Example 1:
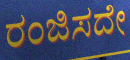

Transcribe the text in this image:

ರಂಜಿಸದೇ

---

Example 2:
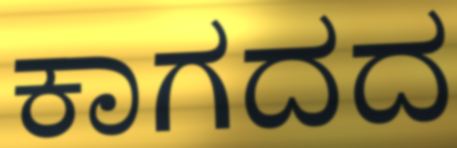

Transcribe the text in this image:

ಕಾಗದದ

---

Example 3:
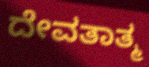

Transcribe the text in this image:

ದೇವತಾತ್ಮ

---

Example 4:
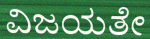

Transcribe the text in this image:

ವಿಜಯತೇ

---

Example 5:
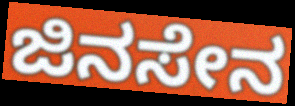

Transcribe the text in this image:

ಜಿನಸೇನ